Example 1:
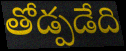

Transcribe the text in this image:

తోడ్పడేది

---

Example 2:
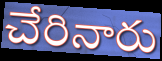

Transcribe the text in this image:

చేరినారు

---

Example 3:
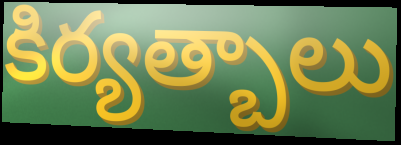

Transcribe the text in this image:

కిర్యత్బాలు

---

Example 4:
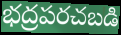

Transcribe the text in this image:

భద్రపరచబడి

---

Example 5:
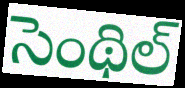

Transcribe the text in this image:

సెంథిల్